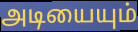
அடியையும்